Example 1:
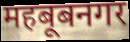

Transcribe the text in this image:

महबूबनगर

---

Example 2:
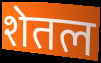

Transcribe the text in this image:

शेतल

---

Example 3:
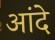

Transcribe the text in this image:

आंदे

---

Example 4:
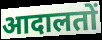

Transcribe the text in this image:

आदालतों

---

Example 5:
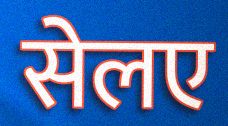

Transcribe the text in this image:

सेलए